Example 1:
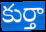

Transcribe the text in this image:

కుర్తా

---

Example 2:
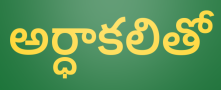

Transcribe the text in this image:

అర్ధాకలితో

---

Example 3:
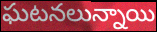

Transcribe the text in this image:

ఘటనలున్నాయి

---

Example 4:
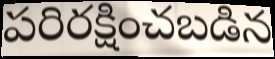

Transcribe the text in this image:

పరిరక్షించబడిన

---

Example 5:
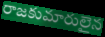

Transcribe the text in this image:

రాజకుమారులైన